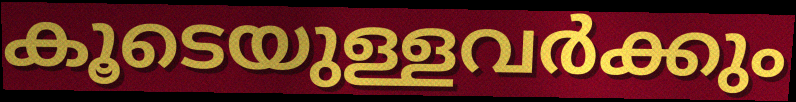
കൂടെയുള്ളവർക്കും